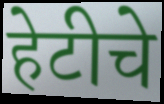
हेटीचे